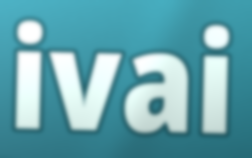
ivai